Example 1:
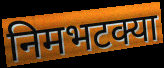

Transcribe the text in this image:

निमभटक्या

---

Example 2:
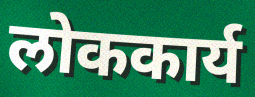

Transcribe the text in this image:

लोककार्य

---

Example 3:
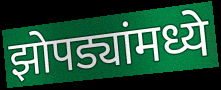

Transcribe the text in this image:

झोपड्यांमध्ये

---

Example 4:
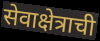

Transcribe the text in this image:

सेवाक्षेत्राची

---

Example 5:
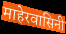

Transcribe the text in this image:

माहेरवासिनी